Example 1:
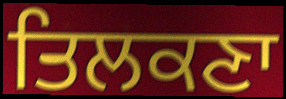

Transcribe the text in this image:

ਤਿਲਕਣਾ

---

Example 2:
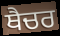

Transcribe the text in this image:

ਥੈਚਰ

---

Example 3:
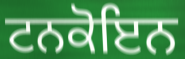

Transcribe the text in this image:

ਟਨਕੋਇਨ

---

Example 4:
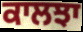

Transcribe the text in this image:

ਕਾਲਝਾ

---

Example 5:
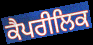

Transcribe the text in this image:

ਕੈਪਰੀਲਿਕ